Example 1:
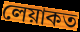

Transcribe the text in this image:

লেয়াকত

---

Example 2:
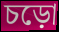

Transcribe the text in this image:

চড়ো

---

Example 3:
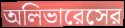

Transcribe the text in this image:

অলিভারেসের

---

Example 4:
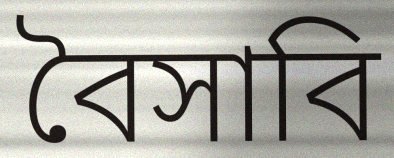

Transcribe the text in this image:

বৈসাবি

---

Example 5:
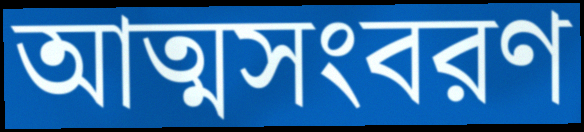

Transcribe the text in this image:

আত্মসংবরণ